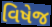
વિષેજ